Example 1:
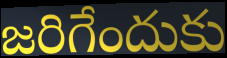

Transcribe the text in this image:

జరిగేందుకు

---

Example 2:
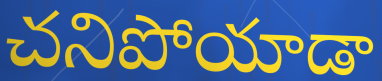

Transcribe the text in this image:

చనిపోయాడా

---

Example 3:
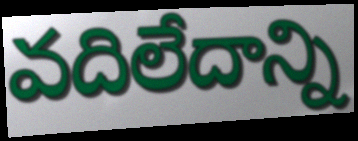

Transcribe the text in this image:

వదిలేదాన్ని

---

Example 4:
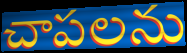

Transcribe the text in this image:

చాపలను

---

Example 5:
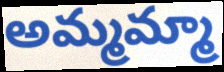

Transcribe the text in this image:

అమ్మమ్మా